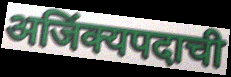
अजिंक्यपदाची